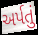
અર્પતું